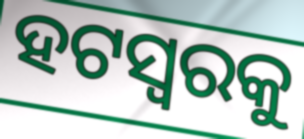
ହଟସ୍ଵରକୁ